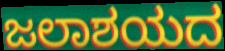
ಜಲಾಶಯದ